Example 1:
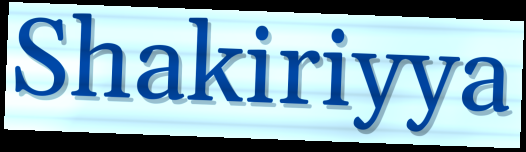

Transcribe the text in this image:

Shakiriyya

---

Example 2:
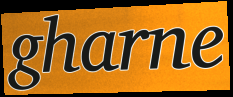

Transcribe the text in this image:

gharne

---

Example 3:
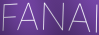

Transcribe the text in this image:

FANAI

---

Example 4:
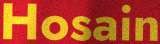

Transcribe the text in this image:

Hosain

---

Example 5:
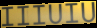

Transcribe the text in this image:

IIIUIU